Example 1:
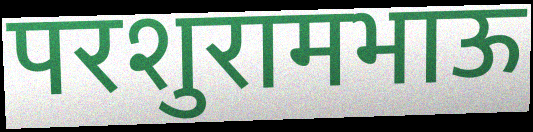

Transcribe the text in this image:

परशुरामभाऊ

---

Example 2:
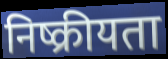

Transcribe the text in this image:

निष्क्रीयता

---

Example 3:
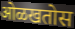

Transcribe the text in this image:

ओळखतोस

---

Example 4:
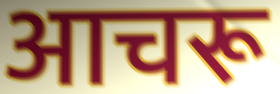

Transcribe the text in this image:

आचरू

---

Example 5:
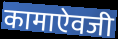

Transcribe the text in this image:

कामाऐवजी